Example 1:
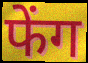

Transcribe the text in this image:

फेंग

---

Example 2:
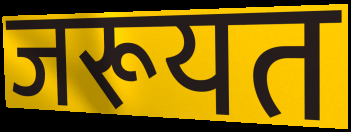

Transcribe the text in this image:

जरूयत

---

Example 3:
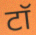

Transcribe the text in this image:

टॉ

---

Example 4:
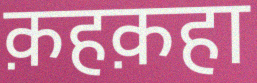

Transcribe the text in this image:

क़हक़हा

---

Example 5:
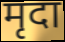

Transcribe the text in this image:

मृदा